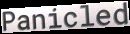
Panicled